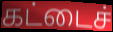
கட்டைச்